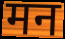
मन